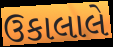
ઉકાલાલે